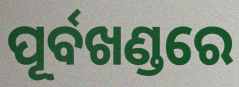
ପୂର୍ବଖଣ୍ଡରେ